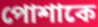
পোশাকে